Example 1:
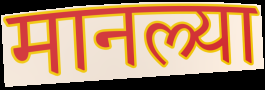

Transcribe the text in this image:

मानल्या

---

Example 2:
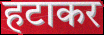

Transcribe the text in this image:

हटाकर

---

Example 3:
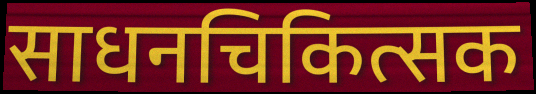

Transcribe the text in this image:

साधनचिकित्सक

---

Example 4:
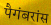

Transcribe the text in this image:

पैगंबरांस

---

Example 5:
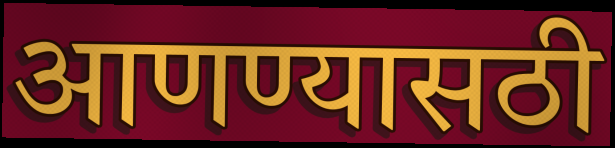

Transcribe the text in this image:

आणण्यासठी